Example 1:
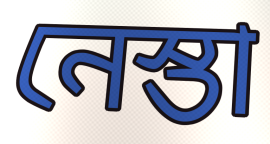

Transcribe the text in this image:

নেস্তা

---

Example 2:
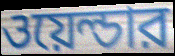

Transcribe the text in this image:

ওয়েল্ডার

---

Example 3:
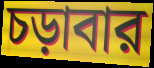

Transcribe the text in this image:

চড়াবার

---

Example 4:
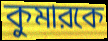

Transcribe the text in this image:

কুমারকে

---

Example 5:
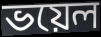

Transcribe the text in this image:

ভয়েল